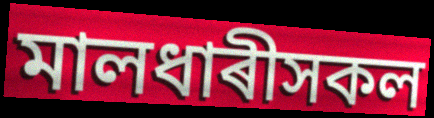
মালধাৰীসকল